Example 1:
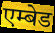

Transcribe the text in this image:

एम्बेड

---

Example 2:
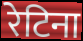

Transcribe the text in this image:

रेटिना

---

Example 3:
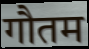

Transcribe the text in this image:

गौतम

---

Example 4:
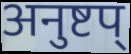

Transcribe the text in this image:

अनुष्टप्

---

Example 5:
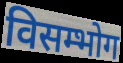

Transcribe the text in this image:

विसम्भोग